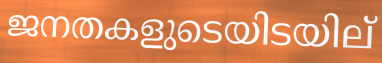
ജനതകളുടെയിടയില്